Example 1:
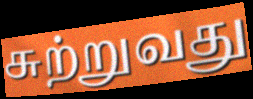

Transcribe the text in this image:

சுற்றுவது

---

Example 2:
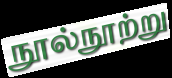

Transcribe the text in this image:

நூல்நூற்று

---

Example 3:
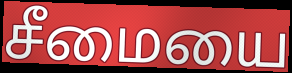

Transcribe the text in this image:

சீமையை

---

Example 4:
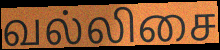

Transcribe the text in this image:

வல்லிசை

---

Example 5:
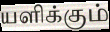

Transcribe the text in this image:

யளிக்கும்